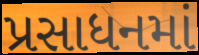
પ્રસાધનમાં